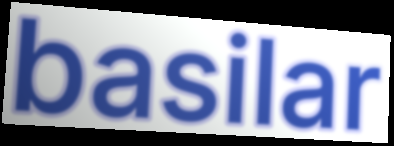
basilar